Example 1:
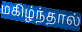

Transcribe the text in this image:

மகிழ்ந்தால்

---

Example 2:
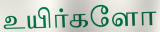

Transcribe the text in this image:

உயிர்களோ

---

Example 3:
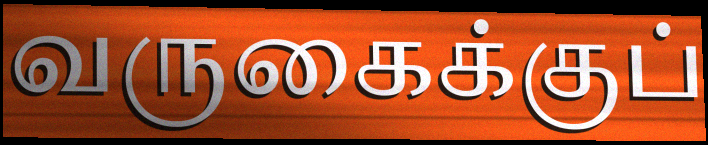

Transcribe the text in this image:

வருகைக்குப்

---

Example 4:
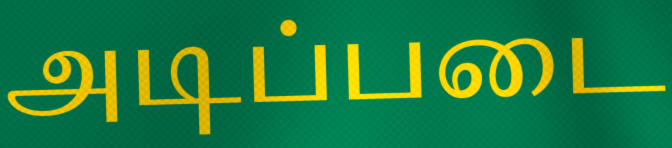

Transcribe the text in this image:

அடிப்படை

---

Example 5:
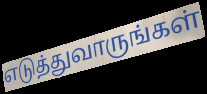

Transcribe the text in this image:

எடுத்துவாருங்கள்